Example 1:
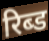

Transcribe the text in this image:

रिब्ड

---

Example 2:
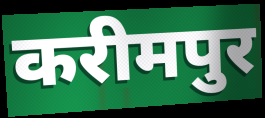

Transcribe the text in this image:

करीमपुर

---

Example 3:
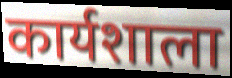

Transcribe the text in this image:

कार्यशाला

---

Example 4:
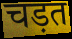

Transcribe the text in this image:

चड़त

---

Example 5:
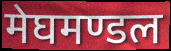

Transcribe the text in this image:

मेघमण्डल